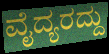
ವೈದ್ಯರದ್ದು